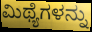
ಮಿಥ್ಯೆಗಳನ್ನು